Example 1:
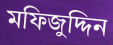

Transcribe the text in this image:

মফিজুদ্দিন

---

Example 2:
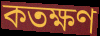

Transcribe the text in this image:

কতক্ষণ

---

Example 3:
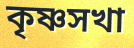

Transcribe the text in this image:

কৃষ্ণসখা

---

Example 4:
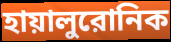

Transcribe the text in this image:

হায়ালুরোনিক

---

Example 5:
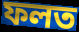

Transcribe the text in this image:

ফলত